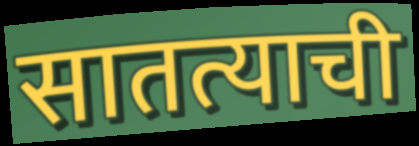
सातत्याची